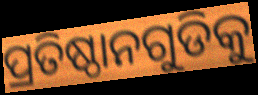
ପ୍ରତିଷ୍ଠାନଗୁଡିକୁ